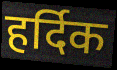
हर्दिक